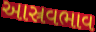
આસ્રવભાવ